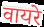
वायरे